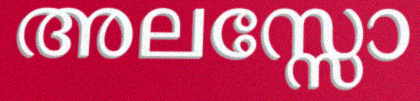
അലസ്സോ